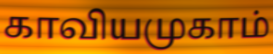
காவியமுகாம்